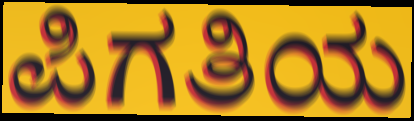
ಪಿಗತಿಯ